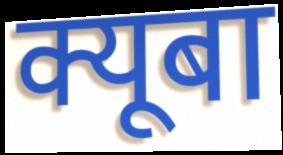
क्यूबा